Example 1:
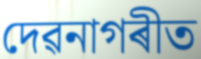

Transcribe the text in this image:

দেৱনাগৰীত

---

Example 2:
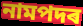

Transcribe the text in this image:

নামপদৰ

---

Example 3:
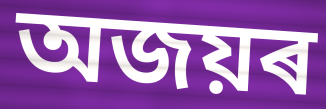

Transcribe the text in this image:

অজয়ৰ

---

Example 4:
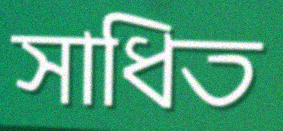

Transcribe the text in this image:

সাধিত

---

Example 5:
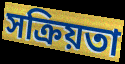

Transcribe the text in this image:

সক্ৰিয়তা